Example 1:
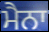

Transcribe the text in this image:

ਮੈਨਾ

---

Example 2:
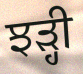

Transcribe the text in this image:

ਝੜ੍ਹੀ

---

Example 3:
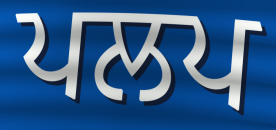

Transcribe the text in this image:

ਪਲਪ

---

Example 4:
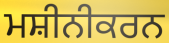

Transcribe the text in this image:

ਮਸ਼ੀਨੀਕਰਨ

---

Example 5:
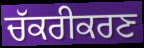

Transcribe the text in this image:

ਚੱਕਰੀਕਰਣ